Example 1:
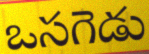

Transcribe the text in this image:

ఒసగెడు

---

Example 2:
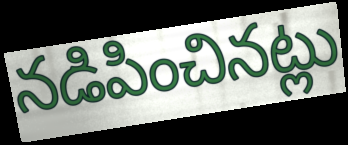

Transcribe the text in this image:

నడిపించినట్లు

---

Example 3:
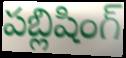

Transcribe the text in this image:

పబ్లిషింగ్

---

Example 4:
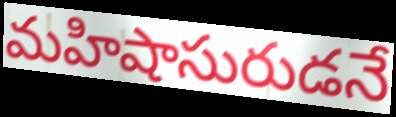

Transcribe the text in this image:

మహిషాసురుడనే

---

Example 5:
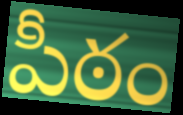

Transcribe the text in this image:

పీఠం